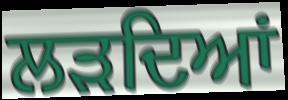
ਲੜਦਿਆਂ